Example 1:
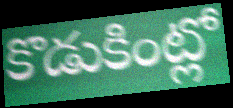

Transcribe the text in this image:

కొడుకింట్లో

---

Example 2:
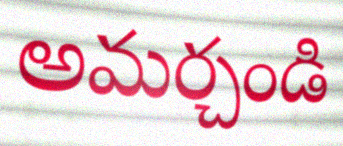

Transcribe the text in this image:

అమర్చండి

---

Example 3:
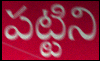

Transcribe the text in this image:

పట్టిని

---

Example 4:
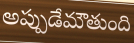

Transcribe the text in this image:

అప్పుడేమౌతుంది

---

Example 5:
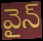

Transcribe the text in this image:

వైన్